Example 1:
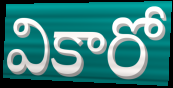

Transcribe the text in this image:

వికారో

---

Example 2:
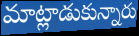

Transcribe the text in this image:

మాట్లాడుకున్నారు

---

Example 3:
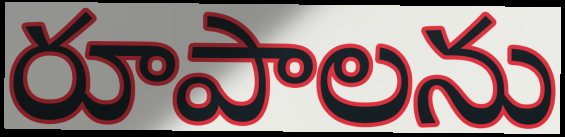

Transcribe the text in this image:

రూపాలను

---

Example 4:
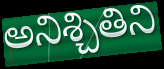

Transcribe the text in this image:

అనిశ్చితిని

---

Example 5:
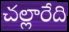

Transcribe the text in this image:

చల్లారేది